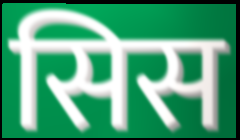
सिस